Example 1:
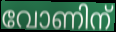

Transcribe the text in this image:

വോണിന്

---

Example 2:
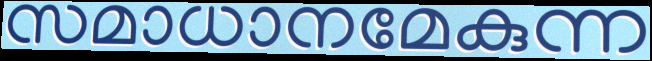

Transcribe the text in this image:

സമാധാനമേകുന്ന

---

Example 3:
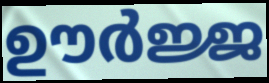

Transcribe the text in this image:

ഊർജ്ജ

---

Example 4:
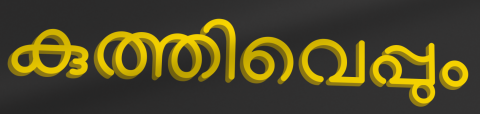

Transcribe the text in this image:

കുത്തിവെപ്പും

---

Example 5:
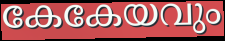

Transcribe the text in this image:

കേകേയവും